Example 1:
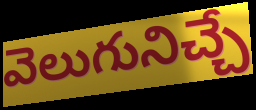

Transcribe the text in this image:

వెలుగునిచ్చే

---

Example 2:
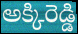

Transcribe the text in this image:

అక్కిరెడ్డి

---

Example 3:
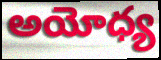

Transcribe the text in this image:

అయోధ్య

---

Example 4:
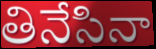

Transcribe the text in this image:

తినేసినా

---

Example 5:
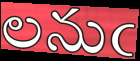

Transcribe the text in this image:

లనుఁ